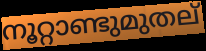
നൂറ്റാണ്ടുമുതല്